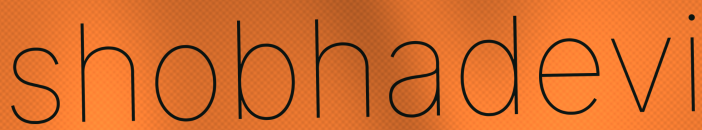
shobhadevi